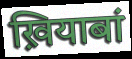
ख़ियाबां